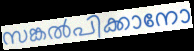
സങ്കൽപിക്കാനോ